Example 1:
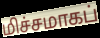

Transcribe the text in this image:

மிச்சமாகப்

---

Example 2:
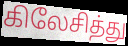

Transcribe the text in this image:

கிலேசித்து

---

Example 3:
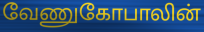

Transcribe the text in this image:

வேணுகோபாலின்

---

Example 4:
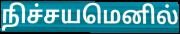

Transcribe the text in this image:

நிச்சயமெனில்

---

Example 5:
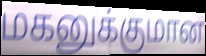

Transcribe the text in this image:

மகனுக்குமான